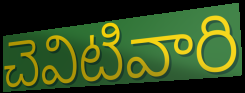
చెవిటివారి